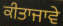
ਕੀਤਾਜਾਵੇ